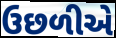
ઉછળીએ